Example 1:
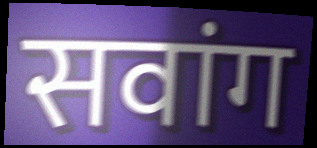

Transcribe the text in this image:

सवांग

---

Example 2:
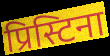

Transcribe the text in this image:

प्रिस्टिना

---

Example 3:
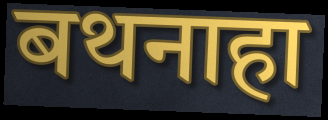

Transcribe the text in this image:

बथनाहा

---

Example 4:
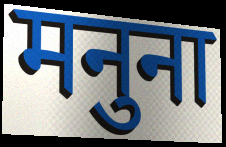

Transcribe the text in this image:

मनुना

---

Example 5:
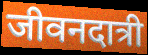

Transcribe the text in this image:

जीवनदात्री